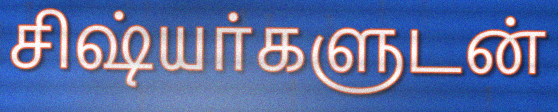
சிஷ்யர்களுடன்